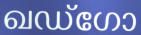
ഖഡ്ഗോ